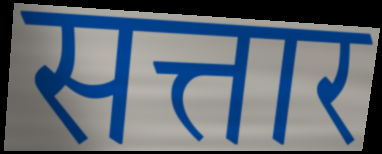
सत्तार